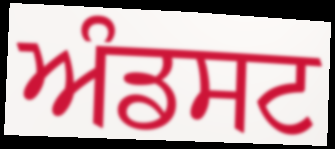
ਅੰਡਸਟ